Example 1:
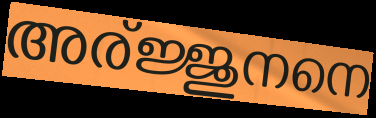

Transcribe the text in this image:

അര്ജ്ജുനനെ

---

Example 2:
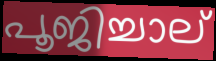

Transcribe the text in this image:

പൂജിച്ചാല്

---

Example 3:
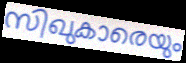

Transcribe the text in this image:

സിഖുകാരെയും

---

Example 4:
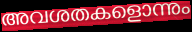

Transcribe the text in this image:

അവശതകളൊന്നും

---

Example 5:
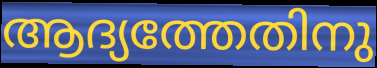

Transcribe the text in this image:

ആദ്യത്തേതിനു